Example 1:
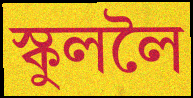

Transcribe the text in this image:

স্কুললৈ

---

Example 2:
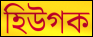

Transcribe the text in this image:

হিউগক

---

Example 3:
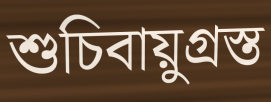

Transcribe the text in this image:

শুচিবায়ুগ্ৰস্ত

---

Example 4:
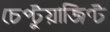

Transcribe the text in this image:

চেপ্টুয়াজিণ্ট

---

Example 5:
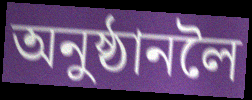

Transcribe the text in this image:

অনুষ্ঠানলৈ